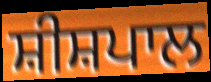
ਸ਼ੀਸ਼ਪਾਲ